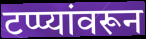
टप्प्यांवरून